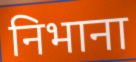
निभाना